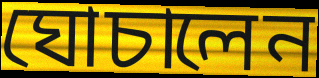
ঘোচালেন